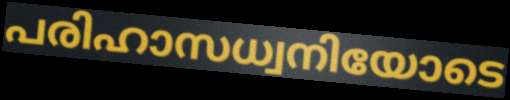
പരിഹാസധ്വനിയോടെ